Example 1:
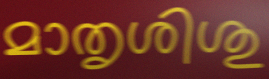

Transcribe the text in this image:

മാതൃശിശു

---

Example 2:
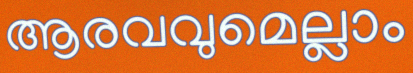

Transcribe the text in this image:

ആരവവുമെല്ലാം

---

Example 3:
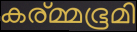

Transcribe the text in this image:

കര്മ്മഭൂമി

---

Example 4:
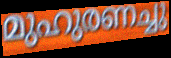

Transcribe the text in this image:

മുഹുരണച്ചു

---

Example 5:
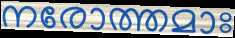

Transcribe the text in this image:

നരോത്തമാഃ